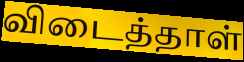
விடைத்தாள்